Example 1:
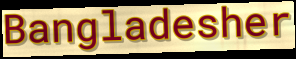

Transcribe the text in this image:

Bangladesher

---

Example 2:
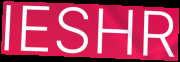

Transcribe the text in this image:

IESHR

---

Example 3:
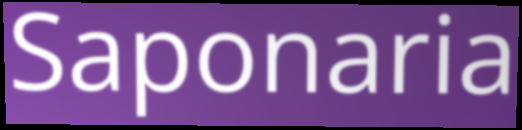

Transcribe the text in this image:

Saponaria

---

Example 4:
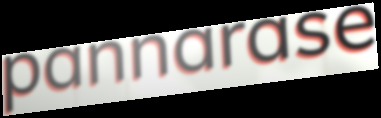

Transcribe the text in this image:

pannarase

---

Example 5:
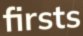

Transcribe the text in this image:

firsts